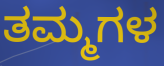
ತಮ್ಮಗಳ